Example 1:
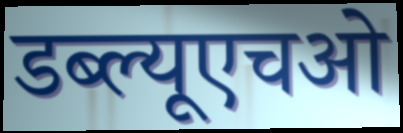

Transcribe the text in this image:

डब्ल्यूएचओ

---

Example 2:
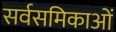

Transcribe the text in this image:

सर्वसमिकाओं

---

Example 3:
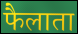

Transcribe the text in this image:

फैलाता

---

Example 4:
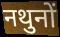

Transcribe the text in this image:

नथुनों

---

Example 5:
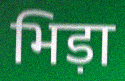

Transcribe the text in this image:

भिड़ा